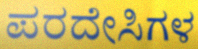
ಪರದೇಸಿಗಳ